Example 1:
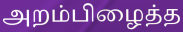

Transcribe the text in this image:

அறம்பிழைத்த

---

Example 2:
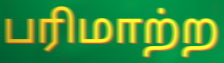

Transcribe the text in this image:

பரிமாற்ற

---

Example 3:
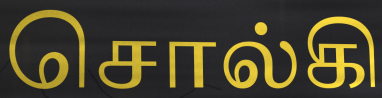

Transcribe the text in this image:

சொல்கி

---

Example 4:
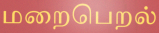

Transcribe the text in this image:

மறைபெறல்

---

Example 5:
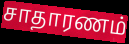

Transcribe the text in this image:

சாதாரணம்